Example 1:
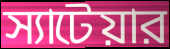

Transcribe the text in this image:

স্যাটেয়ার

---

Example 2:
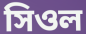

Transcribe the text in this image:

সিওল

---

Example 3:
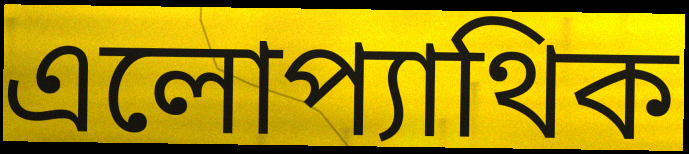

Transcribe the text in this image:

এলোপ্যাথিক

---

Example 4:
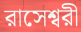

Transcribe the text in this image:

রাসেশ্বরী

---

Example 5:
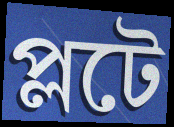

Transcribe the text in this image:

প্লটে